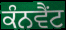
ਕੰਨਵੈਂਟ